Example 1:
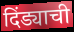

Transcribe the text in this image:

दिंड्याची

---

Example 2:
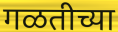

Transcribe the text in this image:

गळतीच्या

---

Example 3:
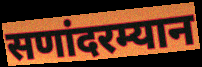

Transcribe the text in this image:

सणांदरम्यान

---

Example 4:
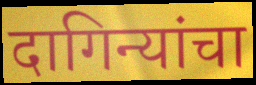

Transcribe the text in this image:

दागिन्यांचा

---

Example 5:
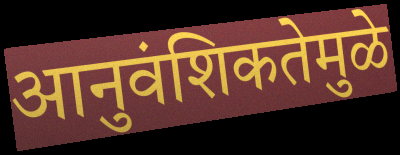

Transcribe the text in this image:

आनुवंशिकतेमुळे